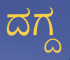
ದಗ್ದ